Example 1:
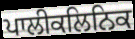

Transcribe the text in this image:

ਪਾਲੀਕਲਿਨਿਕ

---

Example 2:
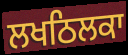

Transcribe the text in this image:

ਲਖਠਿਲਕਾ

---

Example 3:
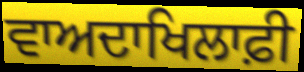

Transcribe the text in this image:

ਵਾਅਦਾਖਿਲਾਫ਼ੀ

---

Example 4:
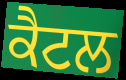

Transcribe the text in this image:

ਕੈਟਲ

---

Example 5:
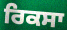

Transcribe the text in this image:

ਰਿਕਸਾ